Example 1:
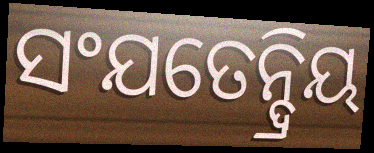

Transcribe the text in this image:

ସଂଯତେନ୍ଦ୍ରିୟ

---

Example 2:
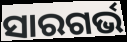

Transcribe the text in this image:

ସାରଗର୍ଭ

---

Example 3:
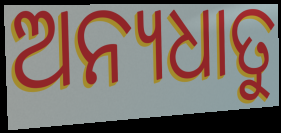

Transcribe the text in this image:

ଅନ୍ୟଧାତୁ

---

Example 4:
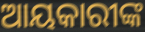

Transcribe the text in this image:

ଆୟକାରୀଙ୍କ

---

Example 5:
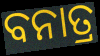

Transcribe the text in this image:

ବନାତ୍ର